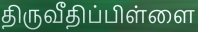
திருவீதிப்பிள்ளை